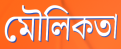
মৌলিকতা